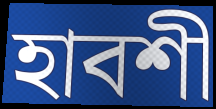
হাবশী